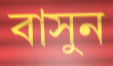
বাসুন